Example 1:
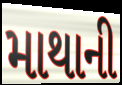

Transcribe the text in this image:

માથાની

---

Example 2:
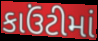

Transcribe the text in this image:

કાઉંટીમાં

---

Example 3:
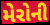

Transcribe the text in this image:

મેરોની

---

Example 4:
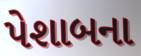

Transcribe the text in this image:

પેશાબના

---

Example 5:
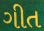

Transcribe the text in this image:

ગીત